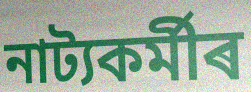
নাট্যকৰ্মীৰ